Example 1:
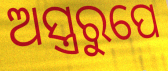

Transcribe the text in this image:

ଅସ୍ତ୍ରରୁପେ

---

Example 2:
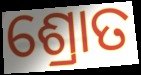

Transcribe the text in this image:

ଶ୍ରୋତ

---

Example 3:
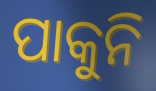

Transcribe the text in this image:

ପାକୁନି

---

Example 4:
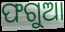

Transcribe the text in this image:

ଫଗୁଆ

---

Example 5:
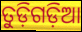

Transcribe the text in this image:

ତୁଡ଼ିଗଡ଼ିଆ